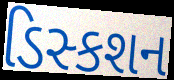
ડિસ્કશન